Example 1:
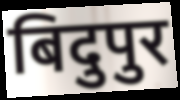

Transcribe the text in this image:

बिदुपुर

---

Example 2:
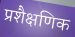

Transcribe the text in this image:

प्रशैक्षणिक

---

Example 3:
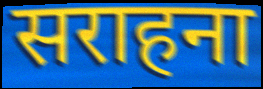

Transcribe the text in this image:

सराहना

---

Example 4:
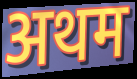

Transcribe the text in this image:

अथम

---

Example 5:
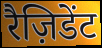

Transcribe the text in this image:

रैज़िडेंट